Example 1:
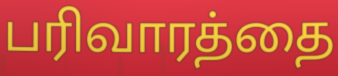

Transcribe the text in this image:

பரிவாரத்தை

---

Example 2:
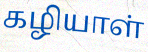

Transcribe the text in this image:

கழியாள்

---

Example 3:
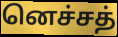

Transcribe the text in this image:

னெச்சத்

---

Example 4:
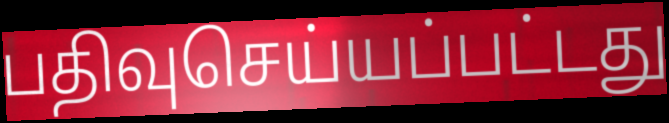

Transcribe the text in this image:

பதிவுசெய்யப்பட்டது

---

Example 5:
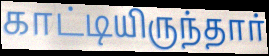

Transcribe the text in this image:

காட்டியிருந்தார்